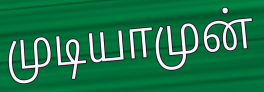
முடியாமுன்